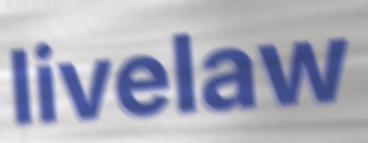
livelaw